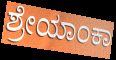
ಶ್ರೇಯಾಂಕಾ